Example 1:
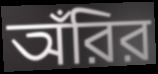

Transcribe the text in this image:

অঁরির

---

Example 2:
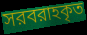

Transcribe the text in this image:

সরবরাহকৃত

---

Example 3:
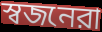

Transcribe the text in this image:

স্বজনেরা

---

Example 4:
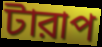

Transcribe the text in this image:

টারাপ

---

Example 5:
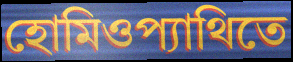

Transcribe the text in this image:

হোমিওপ্যাথিতে